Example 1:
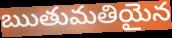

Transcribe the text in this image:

ఋతుమతియైన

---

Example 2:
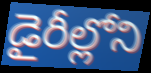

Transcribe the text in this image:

డైరీల్లోని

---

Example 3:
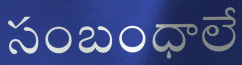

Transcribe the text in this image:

సంబంధాలే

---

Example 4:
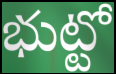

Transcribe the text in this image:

భుట్టో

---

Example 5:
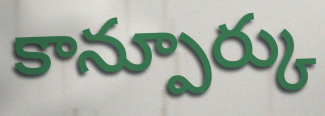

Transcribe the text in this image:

కాన్పూర్కు